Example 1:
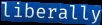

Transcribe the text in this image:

liberally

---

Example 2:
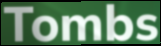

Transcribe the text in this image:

Tombs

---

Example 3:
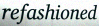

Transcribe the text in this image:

refashioned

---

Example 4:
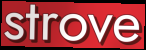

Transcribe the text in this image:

strove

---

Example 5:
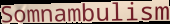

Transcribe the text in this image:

Somnambulism